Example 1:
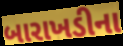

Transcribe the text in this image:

બારાખડીના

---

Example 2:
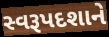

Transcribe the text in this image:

સ્વરૂપદશાને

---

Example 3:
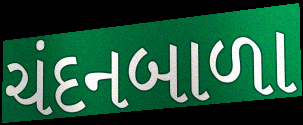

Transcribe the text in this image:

ચંદનબાળા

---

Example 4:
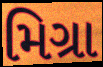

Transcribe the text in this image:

મિગ્રા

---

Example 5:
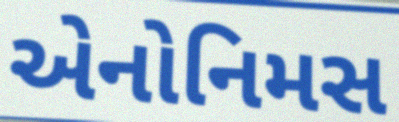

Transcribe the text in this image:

એનોનિમસ